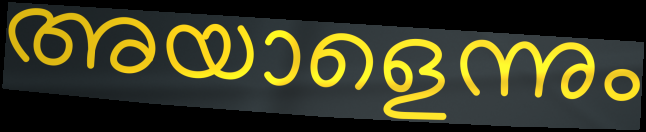
അയാളെന്നും